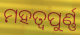
ମହତ୍ୱପୁର୍ଣ୍ଣ